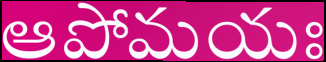
ఆపోమయః